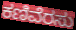
ಕಣಿವೆರಸು